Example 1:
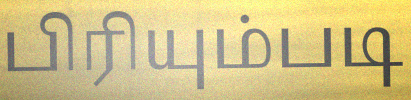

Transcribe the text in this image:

பிரியும்படி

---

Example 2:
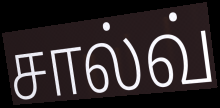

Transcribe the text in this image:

சால்வ்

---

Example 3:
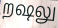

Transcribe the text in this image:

றஷலு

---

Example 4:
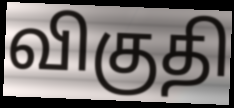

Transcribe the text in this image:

விகுதி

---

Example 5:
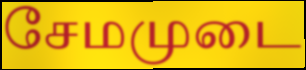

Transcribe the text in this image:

சேமமுடை